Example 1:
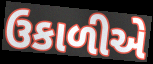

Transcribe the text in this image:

ઉકાળીએ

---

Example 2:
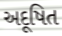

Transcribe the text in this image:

અદૂષિત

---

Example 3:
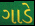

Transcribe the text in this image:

ગાડે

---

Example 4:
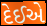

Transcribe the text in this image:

દેઈએ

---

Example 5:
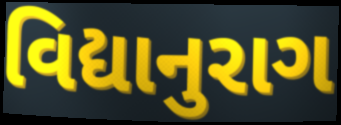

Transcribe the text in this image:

વિદ્યાનુરાગ